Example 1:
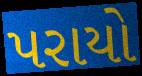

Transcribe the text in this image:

પરાયો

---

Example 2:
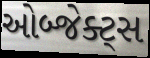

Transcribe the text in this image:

ઓબ્જેક્ટ્સ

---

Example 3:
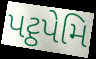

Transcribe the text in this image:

પટ્ઠપેમિ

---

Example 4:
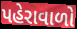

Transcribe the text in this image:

પહેરાવાળો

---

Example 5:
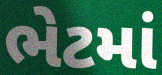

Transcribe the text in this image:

ભેટમાં